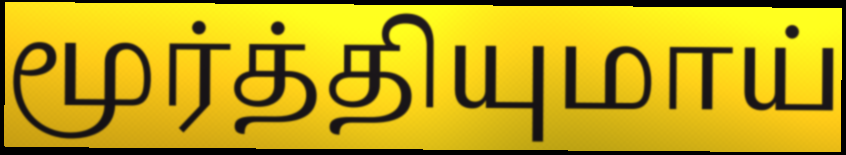
மூர்த்தியுமாய்